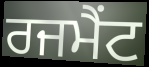
ਰਜਮੈਂਟ